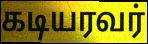
கடியரவர்